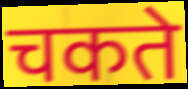
चकते